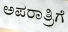
ಅಪರಾತ್ರಿಗೆ